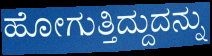
ಹೋಗುತ್ತಿದ್ದುದನ್ನು